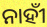
ନାହୀଁ